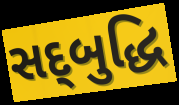
સદ્‌બુદ્ધિ